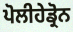
ਪੋਲੀਹੇਡ੍ਰੋਨ